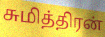
சுமித்திரன்